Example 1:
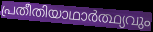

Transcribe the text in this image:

പ്രതീതിയാഥാർത്ഥ്യവും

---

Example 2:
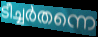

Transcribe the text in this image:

ടീച്ചർതന്നെ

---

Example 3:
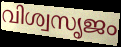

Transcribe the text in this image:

വിശ്വസൃജം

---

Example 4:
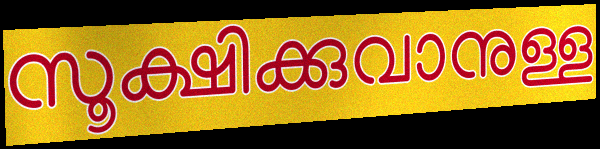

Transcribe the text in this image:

സൂക്ഷിക്കുവാനുള്ള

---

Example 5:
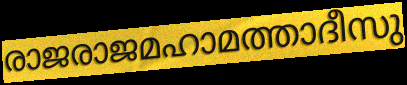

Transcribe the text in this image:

രാജരാജമഹാമത്താദീസു